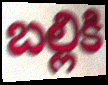
బల్లికి